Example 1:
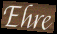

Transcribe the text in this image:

Ehre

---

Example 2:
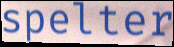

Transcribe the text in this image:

spelter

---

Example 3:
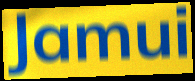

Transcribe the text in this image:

Jamui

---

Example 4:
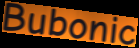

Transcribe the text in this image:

Bubonic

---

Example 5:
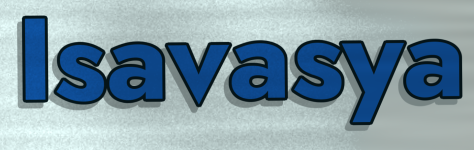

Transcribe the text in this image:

Isavasya